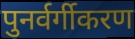
पुनर्वर्गीकरण